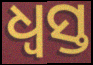
ଧ୍ବସ୍ତ